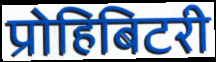
प्रोहिबिटरी